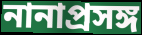
নানাপ্রসঙ্গ